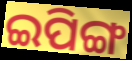
ଇପିଙ୍ଗ